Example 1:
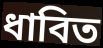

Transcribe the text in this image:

ধাবিত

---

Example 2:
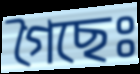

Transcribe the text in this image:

গৈছেঃ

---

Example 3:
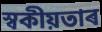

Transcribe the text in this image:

স্বকীয়তাৰ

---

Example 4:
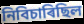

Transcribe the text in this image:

নিবিচাৰিছিল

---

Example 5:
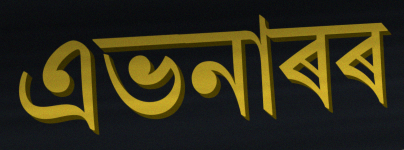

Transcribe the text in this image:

এভনাৰৰ